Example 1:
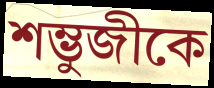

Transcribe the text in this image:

শম্ভুজীকে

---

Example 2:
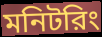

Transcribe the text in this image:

মনিটরিং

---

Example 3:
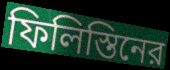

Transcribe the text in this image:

ফিলিস্তিনের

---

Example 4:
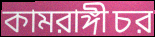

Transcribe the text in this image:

কামরাঙ্গীচর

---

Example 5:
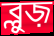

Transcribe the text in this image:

ব্লুজ়